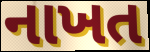
નાખત